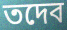
তদেব